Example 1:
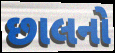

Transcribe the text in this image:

છાલનો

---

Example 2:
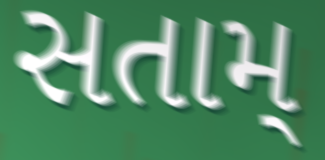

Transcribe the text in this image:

સતામ્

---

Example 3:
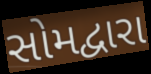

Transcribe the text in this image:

સોમદ્વારા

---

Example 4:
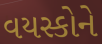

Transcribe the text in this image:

વયસ્કોને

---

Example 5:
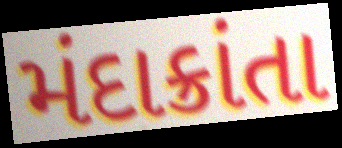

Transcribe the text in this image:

મંદાક્રાંતા